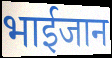
भाईजान